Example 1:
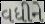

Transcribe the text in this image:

વધીને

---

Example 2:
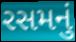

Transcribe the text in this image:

રસમનું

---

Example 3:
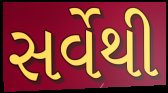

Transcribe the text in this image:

સર્વેથી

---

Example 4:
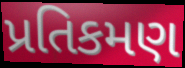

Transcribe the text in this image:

પ્રતિકમણ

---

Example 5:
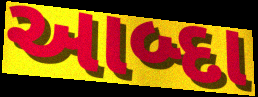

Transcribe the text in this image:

આબ્દા